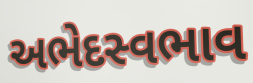
અભેદસ્વભાવ